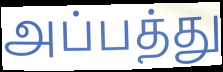
அப்பத்து